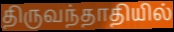
திருவந்தாதியில்